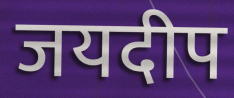
जयदीप